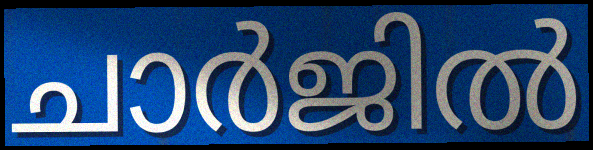
ചാർജിൽ